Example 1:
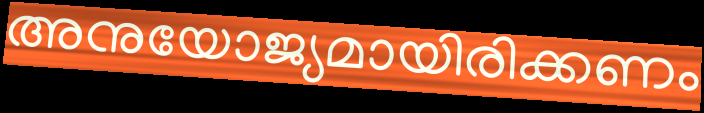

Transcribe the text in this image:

അനുയോജ്യമായിരിക്കണം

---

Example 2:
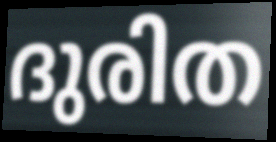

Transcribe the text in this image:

ദുരിത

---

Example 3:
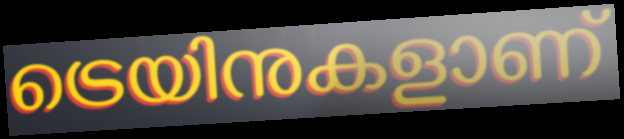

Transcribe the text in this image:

ട്രെയിനുകളാണ്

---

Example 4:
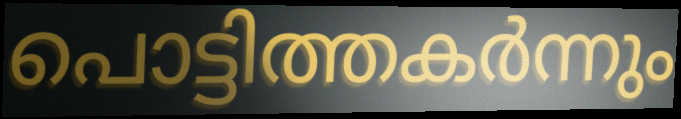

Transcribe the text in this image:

പൊട്ടിത്തകർന്നും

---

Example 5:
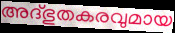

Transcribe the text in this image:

അദ്ഭുതകരവുമായ